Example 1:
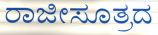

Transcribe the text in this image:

ರಾಜೀಸೂತ್ರದ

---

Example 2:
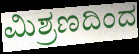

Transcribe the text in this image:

ಮಿಶ್ರಣದಿಂದ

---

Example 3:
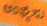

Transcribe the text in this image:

ಅಂಘೈಸು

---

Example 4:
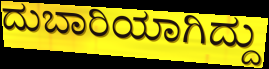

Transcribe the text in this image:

ದುಬಾರಿಯಾಗಿದ್ದು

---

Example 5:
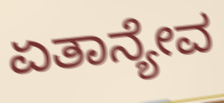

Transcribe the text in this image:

ಏತಾನ್ಯೇವ